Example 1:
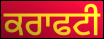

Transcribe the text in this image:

ਕਰਾਫਟੀ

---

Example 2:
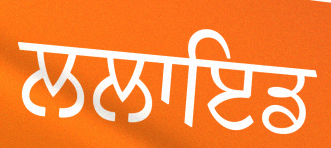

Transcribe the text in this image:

ਲਲਾਇਡ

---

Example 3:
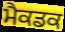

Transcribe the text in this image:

ਮੈਕਡਕ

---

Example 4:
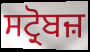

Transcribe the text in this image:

ਸਟ੍ਰੋਬਜ਼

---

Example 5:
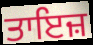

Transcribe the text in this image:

ਤਾਇਜ਼